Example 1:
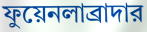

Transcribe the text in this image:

ফুয়েনলাব্রাদার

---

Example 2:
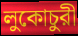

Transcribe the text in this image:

লুকোচুরী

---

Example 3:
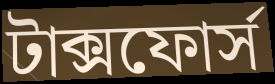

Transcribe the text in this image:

টাক্সফোর্স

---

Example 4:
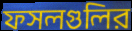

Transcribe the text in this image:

ফসলগুলির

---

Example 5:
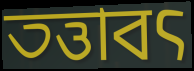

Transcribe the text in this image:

তত্তাবৎ